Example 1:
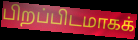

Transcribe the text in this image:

பிறப்பிடமாகக்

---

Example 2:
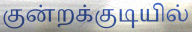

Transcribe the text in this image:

குன்றக்குடியில்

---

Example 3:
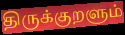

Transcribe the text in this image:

திருக்குறளும்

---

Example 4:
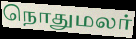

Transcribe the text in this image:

நொதுமலர்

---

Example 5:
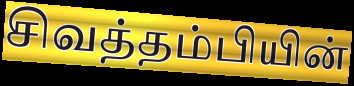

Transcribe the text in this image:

சிவத்தம்பியின்